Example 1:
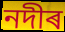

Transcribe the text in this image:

নদীৰ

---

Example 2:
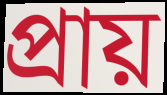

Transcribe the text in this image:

প্ৰায়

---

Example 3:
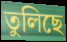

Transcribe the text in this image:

তুলিছে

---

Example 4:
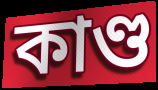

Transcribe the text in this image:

কাণ্ড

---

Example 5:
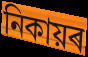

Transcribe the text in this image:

নিকায়ৰ